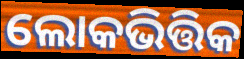
ଲୋକଭିତ୍ତିକ